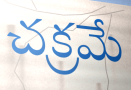
చక్రమే